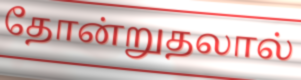
தோன்றுதலால்